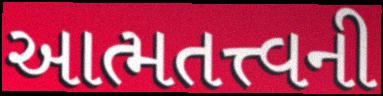
આત્મતત્ત્વની